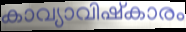
കാവ്യാവിഷ്കാരം